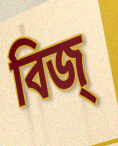
বিজ্